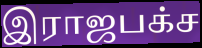
இராஜபக்ச